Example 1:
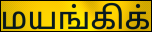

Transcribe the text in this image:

மயங்கிக்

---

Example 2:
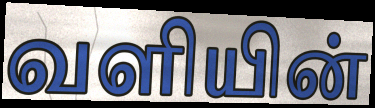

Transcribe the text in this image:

வளியின்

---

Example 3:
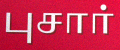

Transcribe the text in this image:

புசார்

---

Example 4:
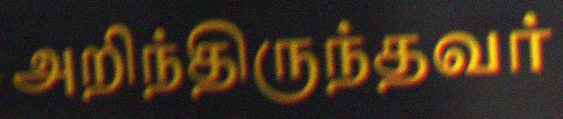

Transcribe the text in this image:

அறிந்திருந்தவர்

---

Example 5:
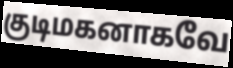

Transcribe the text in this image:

குடிமகனாகவே